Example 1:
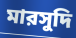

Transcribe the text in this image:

মারসুদি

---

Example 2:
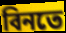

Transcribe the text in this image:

বিনতে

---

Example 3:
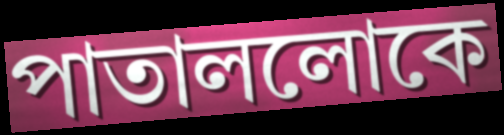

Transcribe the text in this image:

পাতাললোকে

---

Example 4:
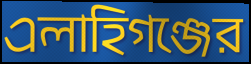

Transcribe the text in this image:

এলাহিগঞ্জের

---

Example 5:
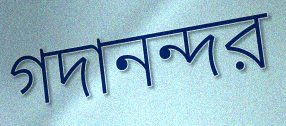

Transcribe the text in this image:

গদানন্দর